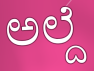
ಅಲ್ದೆ